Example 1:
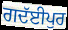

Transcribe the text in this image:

ਗਦੱਈਪੁਰ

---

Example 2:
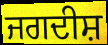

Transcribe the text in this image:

ਜਗਦੀਸ਼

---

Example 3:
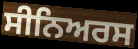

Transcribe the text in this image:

ਸੀਨਿਅਰਸ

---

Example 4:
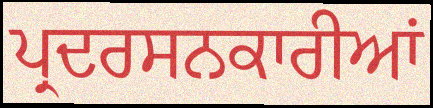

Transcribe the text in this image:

ਪ੍ਰਦਰਸਨਕਾਰੀਆਂ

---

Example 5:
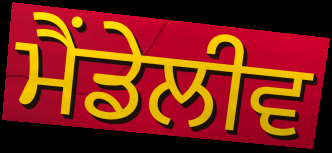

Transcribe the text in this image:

ਮੈਂਡੇਲੀਵ